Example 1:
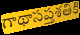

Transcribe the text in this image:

గాథాసప్తశతికి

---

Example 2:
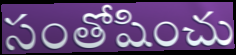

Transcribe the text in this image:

సంతోషించు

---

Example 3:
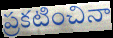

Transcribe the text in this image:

ప్రకటించినా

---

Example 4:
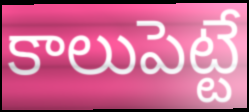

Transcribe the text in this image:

కాలుపెట్టే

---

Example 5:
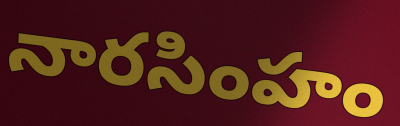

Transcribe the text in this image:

నారసింహం